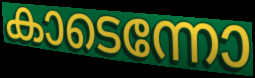
കാടെന്നോ